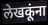
लेखकूंना